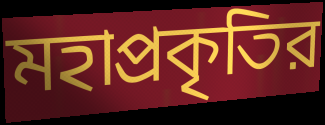
মহাপ্রকৃতির